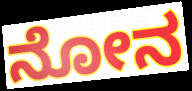
ನೋನ